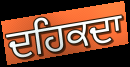
ਦਹਿਕਦਾ